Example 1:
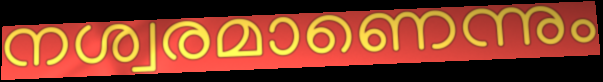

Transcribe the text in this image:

നശ്വരമാണെന്നും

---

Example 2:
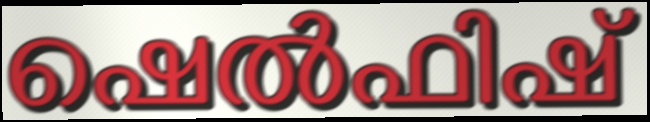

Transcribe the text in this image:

ഷെൽഫിഷ്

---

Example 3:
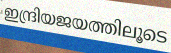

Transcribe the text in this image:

ഇന്ദ്രിയജയത്തിലൂടെ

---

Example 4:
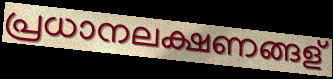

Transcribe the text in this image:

പ്രധാനലക്ഷണങ്ങള്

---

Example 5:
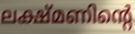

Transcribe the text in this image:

ലക്ഷ്മണിന്റെ